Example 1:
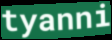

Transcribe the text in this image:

tyanni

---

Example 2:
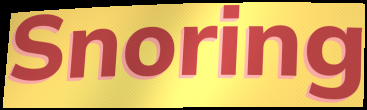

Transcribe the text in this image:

Snoring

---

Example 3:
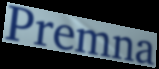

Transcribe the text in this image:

Premna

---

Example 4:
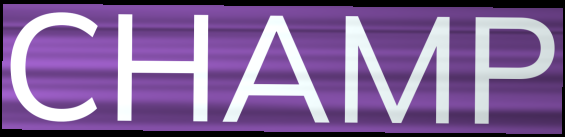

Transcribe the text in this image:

CHAMP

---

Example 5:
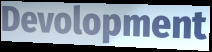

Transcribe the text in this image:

Devolopment